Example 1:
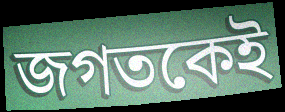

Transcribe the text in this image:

জগতকেই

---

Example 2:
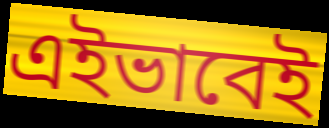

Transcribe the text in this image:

এইভাবেই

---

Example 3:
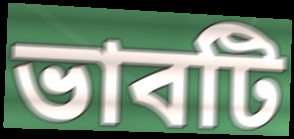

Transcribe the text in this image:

ভাবটি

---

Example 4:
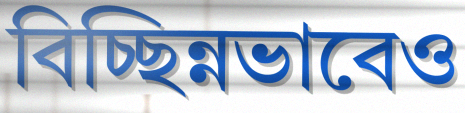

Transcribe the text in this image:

বিচ্ছিন্নভাবেও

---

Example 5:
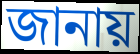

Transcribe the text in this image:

জানায়